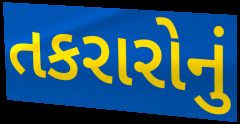
તકરારોનું